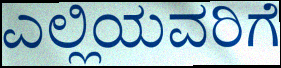
ಎಲ್ಲಿಯವರಿಗೆ